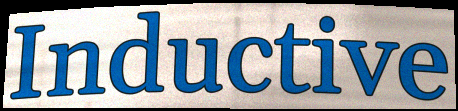
Inductive